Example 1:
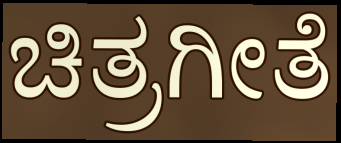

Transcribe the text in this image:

ಚಿತ್ರಗೀತೆ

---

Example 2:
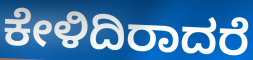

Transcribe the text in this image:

ಕೇಳಿದಿರಾದರೆ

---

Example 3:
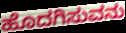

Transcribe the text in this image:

ಹೊದಗಿಸುವನು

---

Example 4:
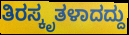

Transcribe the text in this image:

ತಿರಸ್ಕೃತಳಾದದ್ದು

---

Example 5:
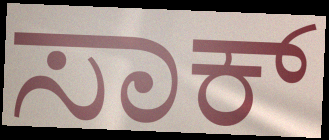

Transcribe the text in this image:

ಸಾಕ್